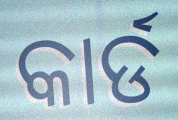
କାର୍ଡ